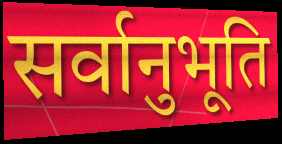
सर्वानुभूति